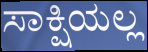
ಸಾಕ್ಷಿಯಲ್ಲ